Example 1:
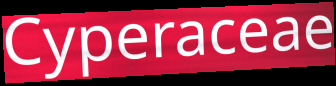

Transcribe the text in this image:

Cyperaceae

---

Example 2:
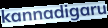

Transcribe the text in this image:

kannadigaru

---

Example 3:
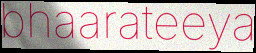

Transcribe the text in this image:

bhaarateeya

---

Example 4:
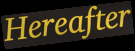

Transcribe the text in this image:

Hereafter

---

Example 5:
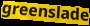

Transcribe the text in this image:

greenslade